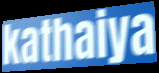
kathaiya